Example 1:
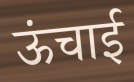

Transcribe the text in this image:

ऊंचाई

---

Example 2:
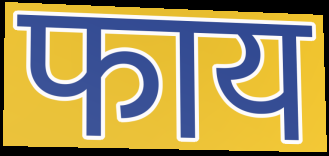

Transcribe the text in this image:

फाय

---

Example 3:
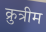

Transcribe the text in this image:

क्रुत्रीम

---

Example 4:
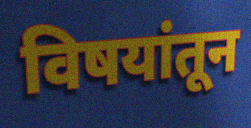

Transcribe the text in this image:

विषयांतून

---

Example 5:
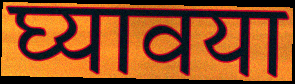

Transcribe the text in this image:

घ्यावया